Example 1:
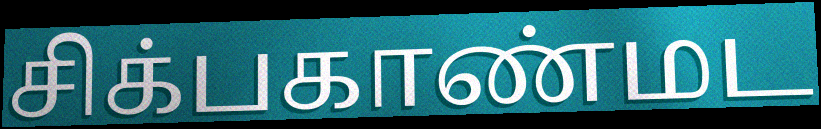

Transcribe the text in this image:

சிக்பகாண்மட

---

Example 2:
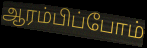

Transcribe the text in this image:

ஆரம்பிப்போம்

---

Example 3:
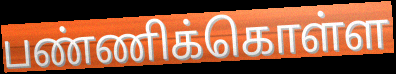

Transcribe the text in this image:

பண்ணிக்கொள்ள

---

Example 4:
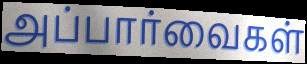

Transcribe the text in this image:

அப்பார்வைகள்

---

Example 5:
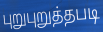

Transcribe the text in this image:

புறுபுறுத்தபடி